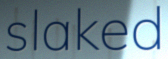
slaked